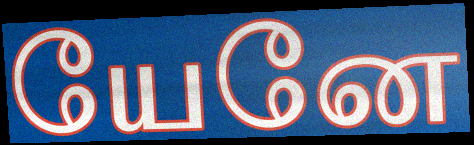
யேனே